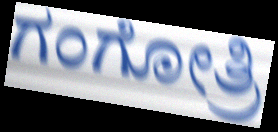
ಗಂಗೋತ್ರಿ